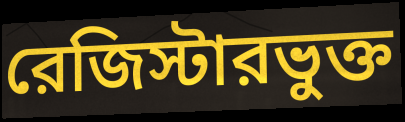
রেজিস্টারভুক্ত